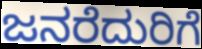
ಜನರೆದುರಿಗೆ